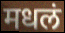
मधलं